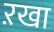
ऱखा